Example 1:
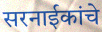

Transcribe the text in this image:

सरनाईकांचे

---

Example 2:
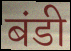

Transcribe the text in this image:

बंडी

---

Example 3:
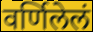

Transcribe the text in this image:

वर्णिलेलं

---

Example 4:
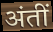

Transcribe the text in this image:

अंतीं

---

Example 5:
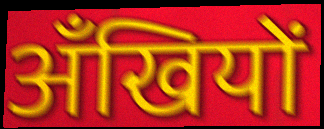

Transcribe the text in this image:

अँखियों